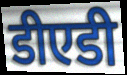
डीएडी